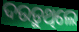
ଦଉଡ଼ୁଥିଲେ